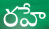
రహే